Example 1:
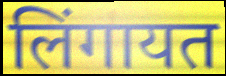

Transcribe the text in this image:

लिंगायत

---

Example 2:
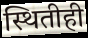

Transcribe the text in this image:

स्थितीही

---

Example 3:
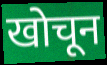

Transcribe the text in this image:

खोचून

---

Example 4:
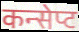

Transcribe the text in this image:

कन्सेप्ट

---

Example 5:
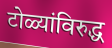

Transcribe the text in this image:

टोळ्यांविरुद्ध